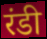
रंडी